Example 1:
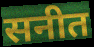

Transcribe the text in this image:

सनीत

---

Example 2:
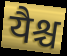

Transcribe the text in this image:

यैश्च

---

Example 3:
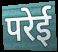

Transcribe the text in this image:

परेई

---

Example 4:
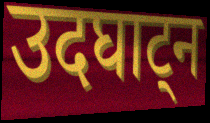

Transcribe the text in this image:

उदघाट्न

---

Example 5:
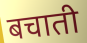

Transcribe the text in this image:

बचाती